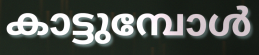
കാട്ടുമ്പോൾ